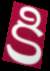
కి